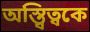
অস্ত্বিত্বকে